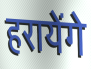
हरायेंगे